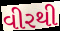
વીરથી